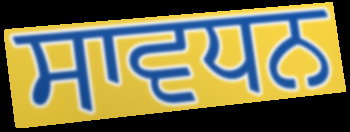
ਸਾਵਧਨ